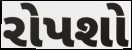
રોપશો